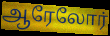
ஆரேலோர்